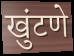
खुंटणे